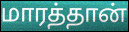
மாரத்தான்